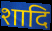
शादि